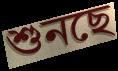
শুনছে